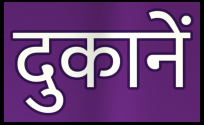
दुकानें